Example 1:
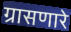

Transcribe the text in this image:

ग्रासणारे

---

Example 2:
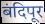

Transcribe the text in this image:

बंदिपूर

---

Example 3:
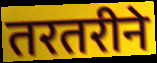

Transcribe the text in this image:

तरतरीने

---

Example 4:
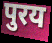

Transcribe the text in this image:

पुरय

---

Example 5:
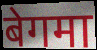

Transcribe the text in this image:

बेगमा